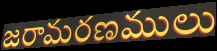
జరామరణములు